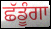
ਛੱਡੂੰਗਾ